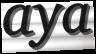
aya